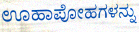
ಊಹಾಪೋಹಗಳನ್ನು